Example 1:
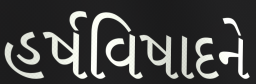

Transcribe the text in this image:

હર્ષવિષાદને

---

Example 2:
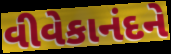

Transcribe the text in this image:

વીવેકાનંદને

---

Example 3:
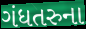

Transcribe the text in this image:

ગંધતરુના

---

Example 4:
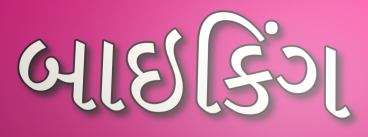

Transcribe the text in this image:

બાઇકિંગ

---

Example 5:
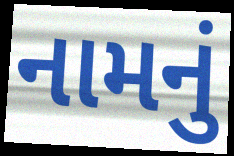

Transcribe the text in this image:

નામનું